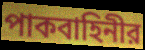
পাকবাহিনীর